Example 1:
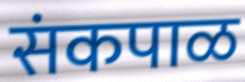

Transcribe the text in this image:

संकपाळ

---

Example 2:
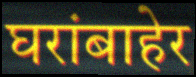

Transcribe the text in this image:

घरांबाहेर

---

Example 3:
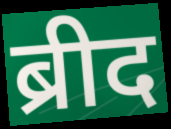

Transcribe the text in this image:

ब्रीद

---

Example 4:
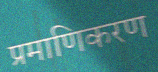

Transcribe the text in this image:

प्रमाणिकरण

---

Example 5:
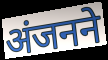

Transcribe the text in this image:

अंजनने